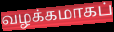
வழக்கமாகப்